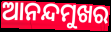
ଆନନ୍ଦମୁଖର